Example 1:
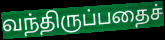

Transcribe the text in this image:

வந்திருப்பதைச்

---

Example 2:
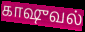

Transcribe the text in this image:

காஷுவல்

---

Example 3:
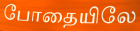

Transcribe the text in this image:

போதையிலே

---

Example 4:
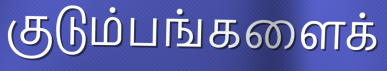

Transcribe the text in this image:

குடும்பங்களைக்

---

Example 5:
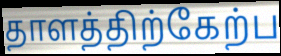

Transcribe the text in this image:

தாளத்திற்கேற்ப